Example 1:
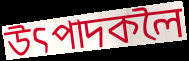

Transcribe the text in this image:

উৎপাদকলৈ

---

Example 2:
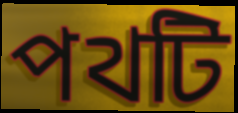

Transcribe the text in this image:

পথটি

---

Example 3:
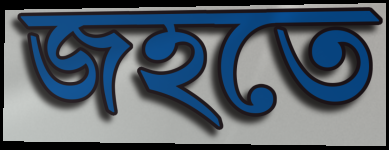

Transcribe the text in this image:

জহতে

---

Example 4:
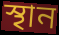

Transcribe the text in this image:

স্থান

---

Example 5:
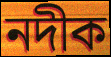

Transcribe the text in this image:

নদীক